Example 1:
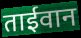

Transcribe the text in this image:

ताईवान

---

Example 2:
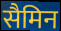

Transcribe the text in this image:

सैमिन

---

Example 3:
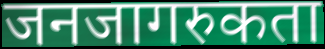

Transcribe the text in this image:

जनजागरुकता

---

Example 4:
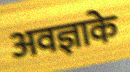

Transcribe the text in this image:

अवज्ञाके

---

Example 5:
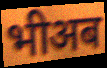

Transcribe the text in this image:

भीअब